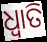
ଧ୍ବାତି